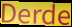
Derde